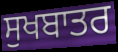
ਸੁਖਬਾਤਰ